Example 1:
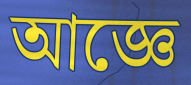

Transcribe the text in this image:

আজ্ঞে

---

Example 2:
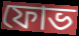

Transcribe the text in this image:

ফোভ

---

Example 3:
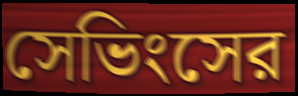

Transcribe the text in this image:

সেভিংসের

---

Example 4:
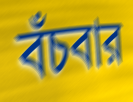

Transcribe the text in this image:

বঁচবার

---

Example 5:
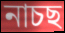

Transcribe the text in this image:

নাচছ